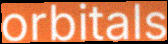
orbitals